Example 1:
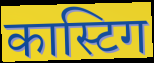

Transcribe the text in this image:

कास्टिग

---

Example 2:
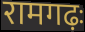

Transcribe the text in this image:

रामगढ़ः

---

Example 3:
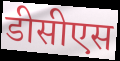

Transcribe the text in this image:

डीसीएस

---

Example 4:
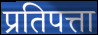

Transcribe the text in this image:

प्रतिपत्ता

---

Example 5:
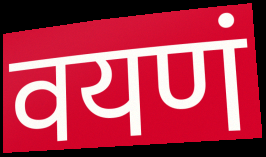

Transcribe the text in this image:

वयणं